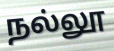
நல்லூ